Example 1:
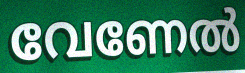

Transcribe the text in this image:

വേണേൽ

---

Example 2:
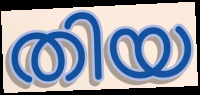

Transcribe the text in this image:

തിയ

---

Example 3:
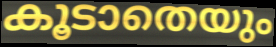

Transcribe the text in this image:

കൂടാതെയും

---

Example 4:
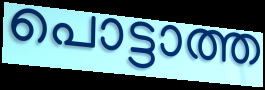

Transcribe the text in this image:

പൊട്ടാത്ത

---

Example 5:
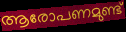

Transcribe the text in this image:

ആരോപണമുണ്ട്